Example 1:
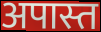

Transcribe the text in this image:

अपास्‍त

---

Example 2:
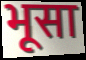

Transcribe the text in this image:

भूसा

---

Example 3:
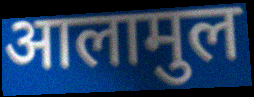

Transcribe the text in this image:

आलामुल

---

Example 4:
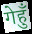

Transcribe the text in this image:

गेहुँ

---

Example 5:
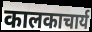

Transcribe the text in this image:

कालकाचार्य